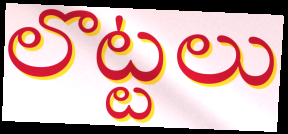
లొట్టలు